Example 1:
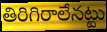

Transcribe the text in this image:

తిరిగిరాలేనట్టు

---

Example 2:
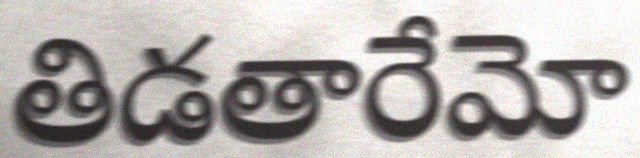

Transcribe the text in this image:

తిడతారేమో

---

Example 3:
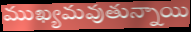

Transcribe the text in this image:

ముఖ్యమవుతున్నాయి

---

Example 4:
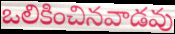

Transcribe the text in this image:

ఒలికించినవాడవు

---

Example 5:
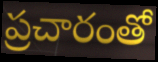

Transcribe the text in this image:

ప్రచారంతో